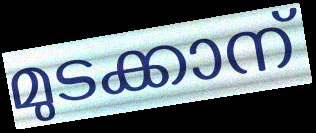
മുടക്കാന്